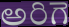
అరిగె